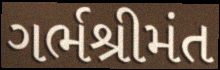
ગર્ભશ્રીમંત